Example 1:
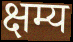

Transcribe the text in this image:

क्षम्य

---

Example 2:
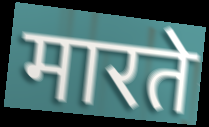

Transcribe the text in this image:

मारते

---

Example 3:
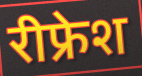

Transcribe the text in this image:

रीफ्रेश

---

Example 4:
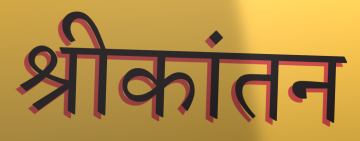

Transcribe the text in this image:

श्रीकांतन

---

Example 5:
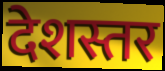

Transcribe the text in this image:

देशस्तर